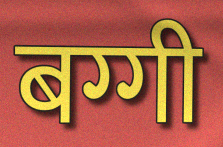
बग्गी